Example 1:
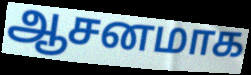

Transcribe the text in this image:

ஆசனமாக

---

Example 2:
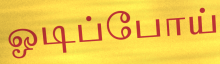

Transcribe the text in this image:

ஓடிப்போய்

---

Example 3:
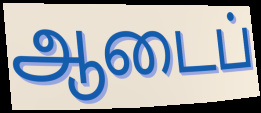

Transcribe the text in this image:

ஆடைப்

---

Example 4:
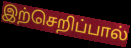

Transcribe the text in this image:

இற்செறிப்பால்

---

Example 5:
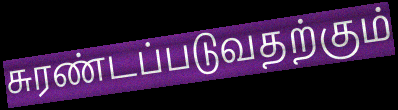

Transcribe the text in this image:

சுரண்டப்படுவதற்கும்